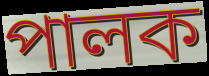
পালক